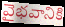
వైభవానికి